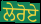
ਲੇਰੋਏ